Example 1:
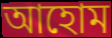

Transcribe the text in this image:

আহোম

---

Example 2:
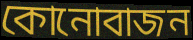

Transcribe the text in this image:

কোনোবাজন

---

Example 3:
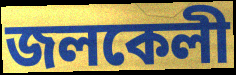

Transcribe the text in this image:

জলকেলী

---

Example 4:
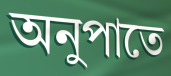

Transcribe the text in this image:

অনুপাতে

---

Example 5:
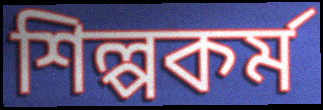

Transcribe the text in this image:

শিল্পকৰ্ম